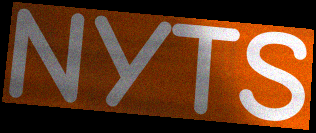
NYTS